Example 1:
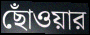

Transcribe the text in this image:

ছোঁওয়ার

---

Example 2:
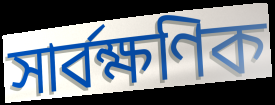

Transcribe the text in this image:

সার্বক্ষণিক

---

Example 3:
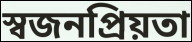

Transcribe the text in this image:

স্বজনপ্রিয়তা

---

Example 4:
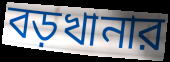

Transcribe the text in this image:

বড়খানার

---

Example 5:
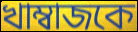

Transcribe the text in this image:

খাম্বাজকে